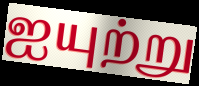
ஐயுற்று